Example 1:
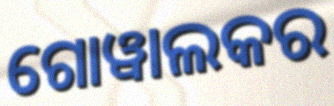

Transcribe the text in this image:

ଗୋୱାଲକର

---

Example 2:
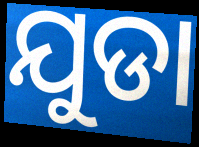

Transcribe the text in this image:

ଯୁଡା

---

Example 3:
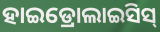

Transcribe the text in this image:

ହାଇଡ୍ରୋଲାଇସିସ୍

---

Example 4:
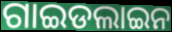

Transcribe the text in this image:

ଗାଇଡଲାଇନ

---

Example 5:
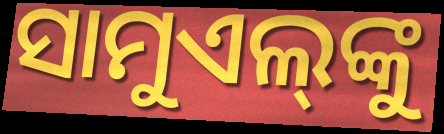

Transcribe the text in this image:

ସାମୁଏଲ୍‌ଙ୍କୁ